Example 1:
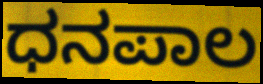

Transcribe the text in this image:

ಧನಪಾಲ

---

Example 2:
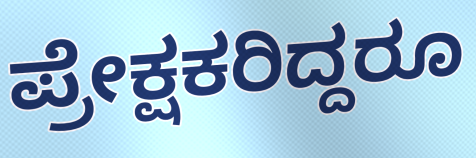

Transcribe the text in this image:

ಪ್ರೇಕ್ಷಕರಿದ್ದರೂ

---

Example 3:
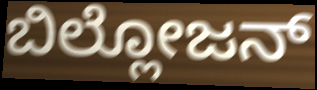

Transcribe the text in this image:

ಬಿಲ್ಲೋಜನ್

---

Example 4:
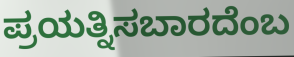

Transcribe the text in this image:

ಪ್ರಯತ್ನಿಸಬಾರದೆಂಬ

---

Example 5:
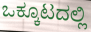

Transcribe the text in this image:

ಒಕ್ಕೂಟದಲ್ಲಿ